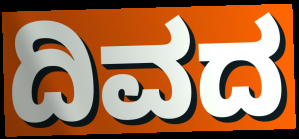
ದಿವದ